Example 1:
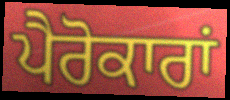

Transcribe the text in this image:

ਪੈਰੋਕਾਰਾਂ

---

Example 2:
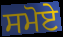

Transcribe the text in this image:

ਸਮੋਏ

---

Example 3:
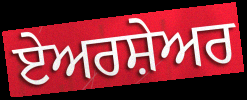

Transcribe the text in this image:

ਏਅਰਸ਼ੇਅਰ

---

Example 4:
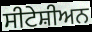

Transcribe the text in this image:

ਸੀਟੇਸ਼ੀਅਨ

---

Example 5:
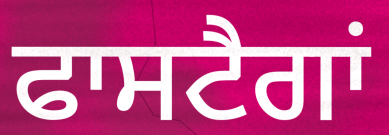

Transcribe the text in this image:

ਫਾਸਟੈਗਾਂ